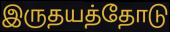
இருதயத்தோடு